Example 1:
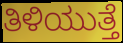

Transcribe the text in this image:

ತಿಳಿಯುತ್ತೆ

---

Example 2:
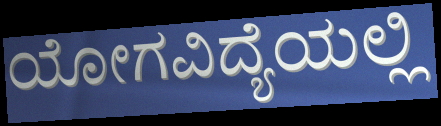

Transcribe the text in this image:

ಯೋಗವಿದ್ಯೆಯಲ್ಲಿ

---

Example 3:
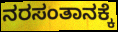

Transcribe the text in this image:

ನರಸಂತಾನಕ್ಕೆ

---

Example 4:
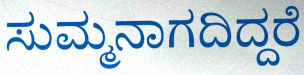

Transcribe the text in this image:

ಸುಮ್ಮನಾಗದಿದ್ದರೆ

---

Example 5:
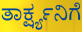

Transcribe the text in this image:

ತಾರ್ಕ್ಷ್ಯನಿಗೆ